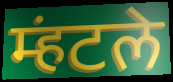
म्हंटले